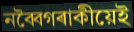
নব্বৈগৰাকীয়েই